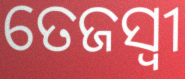
ତେଜସ୍ବୀ